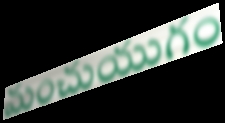
మంచుయుగం